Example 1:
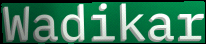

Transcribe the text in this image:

Wadikar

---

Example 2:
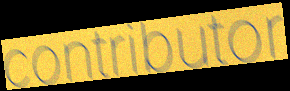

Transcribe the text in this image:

contributor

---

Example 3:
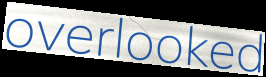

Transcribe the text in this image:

overlooked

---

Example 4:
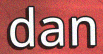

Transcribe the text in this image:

dan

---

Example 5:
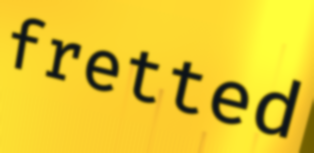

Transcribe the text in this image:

fretted